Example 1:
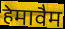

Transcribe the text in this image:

हेमावैम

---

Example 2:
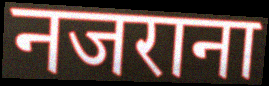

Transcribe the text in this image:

नजराना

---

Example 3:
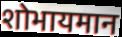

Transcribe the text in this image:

शोभायमान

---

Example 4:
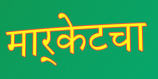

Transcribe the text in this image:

मार्केटचा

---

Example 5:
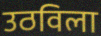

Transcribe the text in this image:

उठविला